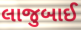
લાજુબાઈ